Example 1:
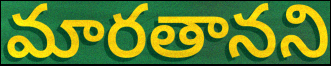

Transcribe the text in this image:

మారతానని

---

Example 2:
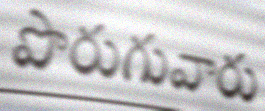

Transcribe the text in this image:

పొరుగువారు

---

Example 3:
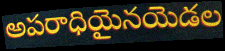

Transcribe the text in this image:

అపరాధియైనయెడల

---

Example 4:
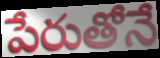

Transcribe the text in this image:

పేరుతోనే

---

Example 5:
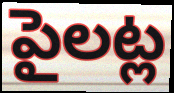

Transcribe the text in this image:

పైలట్ల